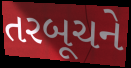
તરબૂચને